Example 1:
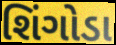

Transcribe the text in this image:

શિંગોડા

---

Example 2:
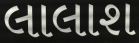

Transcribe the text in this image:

લાલાશ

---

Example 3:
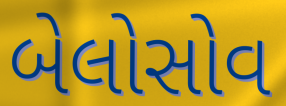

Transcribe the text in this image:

બેલોસોવ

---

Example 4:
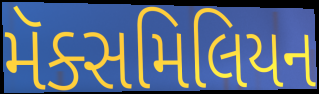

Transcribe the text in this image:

મૅક્સમિલિયન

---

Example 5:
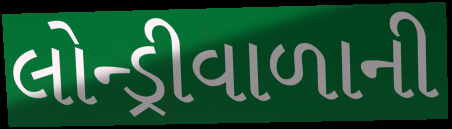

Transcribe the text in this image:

લોન્ડ્રીવાળાની